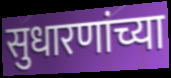
सुधारणांच्या